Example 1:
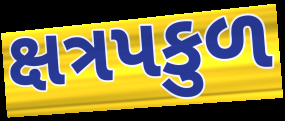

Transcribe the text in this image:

ક્ષત્રપકુળ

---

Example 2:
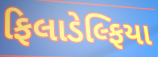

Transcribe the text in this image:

ફિલાડેલ્ફિયા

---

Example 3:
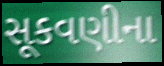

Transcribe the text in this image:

સૂકવણીના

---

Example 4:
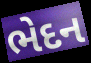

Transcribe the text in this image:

ભેદન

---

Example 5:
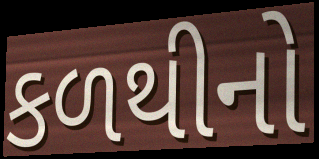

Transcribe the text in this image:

કળથીનો